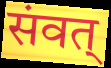
संवत्